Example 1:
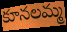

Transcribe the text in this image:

కూనలమ్మ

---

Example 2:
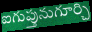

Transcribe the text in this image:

ఐగుప్తునుగూర్చి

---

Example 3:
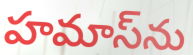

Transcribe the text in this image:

హమాస్‌ను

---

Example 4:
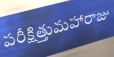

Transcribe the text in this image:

పరీక్షిత్తుమహారాజు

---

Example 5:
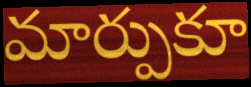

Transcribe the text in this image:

మార్పుకూ